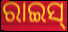
ରାଇସ୍